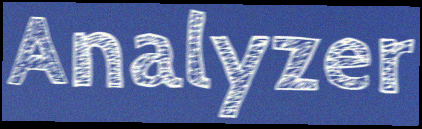
Analyzer